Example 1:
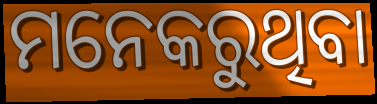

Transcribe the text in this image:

ମନେକରୁଥିବା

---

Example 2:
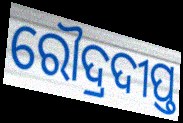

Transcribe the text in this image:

ରୌଦ୍ରଦୀପ୍ତ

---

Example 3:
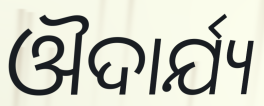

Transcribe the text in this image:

ଔଦାର୍ଯ୍ୟ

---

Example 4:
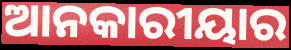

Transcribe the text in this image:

ଆନକାରୀୟାର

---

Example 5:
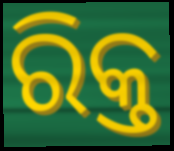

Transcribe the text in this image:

ରିକ୍ତ